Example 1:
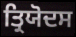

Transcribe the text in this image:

ਤ੍ਰਿਯੋਦਸ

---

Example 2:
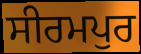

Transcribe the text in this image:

ਸੀਰਮਪੁਰ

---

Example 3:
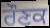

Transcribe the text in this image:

ਰੌਣਕ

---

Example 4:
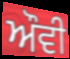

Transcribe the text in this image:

ਔਵੀ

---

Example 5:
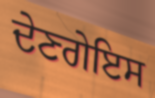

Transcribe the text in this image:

ਦੇਣਗੇਇਸ